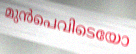
മുൻപെവിടെയോ